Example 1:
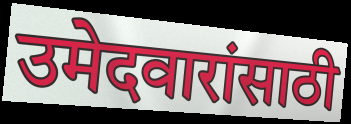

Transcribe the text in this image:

उमेदवारांसाठी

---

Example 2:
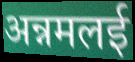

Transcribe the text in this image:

अन्नमलई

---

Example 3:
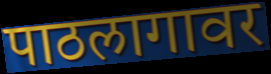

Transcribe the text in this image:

पाठलागावर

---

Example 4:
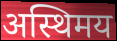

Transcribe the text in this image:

अस्थिमय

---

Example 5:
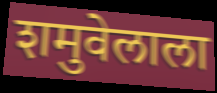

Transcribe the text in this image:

शमुवेलाला